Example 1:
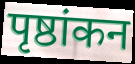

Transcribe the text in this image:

पृष्ठांकन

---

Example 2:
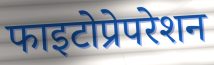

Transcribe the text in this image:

फाइटोप्रेपरेशन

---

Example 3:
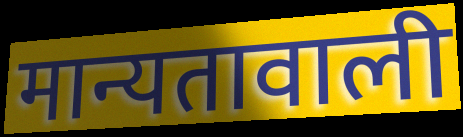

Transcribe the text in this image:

मान्यतावाली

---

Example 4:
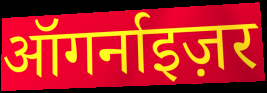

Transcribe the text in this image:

ऑगर्नाइज़र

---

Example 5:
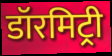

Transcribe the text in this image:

डॉरमिट्री